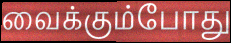
வைக்கும்போது